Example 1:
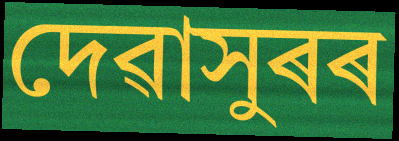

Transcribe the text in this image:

দেৱাসুৰৰ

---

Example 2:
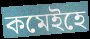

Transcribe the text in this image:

কমেইহে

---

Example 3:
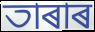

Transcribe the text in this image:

তাৰাৰ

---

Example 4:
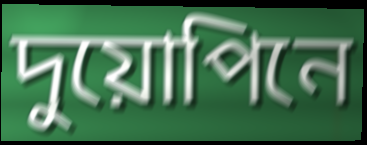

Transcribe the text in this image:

দুয়োপিনে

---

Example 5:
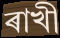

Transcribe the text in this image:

ৰাখী